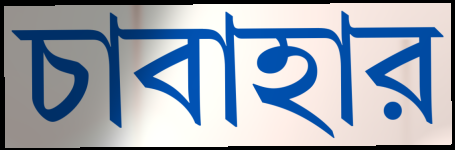
চাবাহার